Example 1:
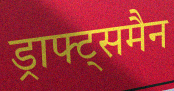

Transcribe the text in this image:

ड्राफ्ट्समैन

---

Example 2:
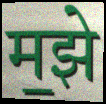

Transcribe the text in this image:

म॒झे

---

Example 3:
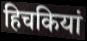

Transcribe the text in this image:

हिचकियां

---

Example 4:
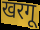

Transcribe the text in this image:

खरगू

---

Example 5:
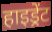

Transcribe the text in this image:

हाइड्रेंट